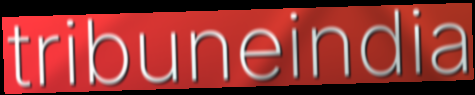
tribuneindia